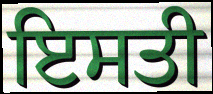
ਇਸਤੀ